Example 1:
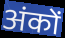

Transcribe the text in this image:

अंकों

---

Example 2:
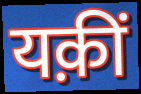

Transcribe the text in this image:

यक़ीं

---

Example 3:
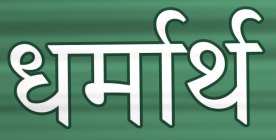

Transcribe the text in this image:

धर्मार्थ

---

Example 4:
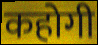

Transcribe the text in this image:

कहोगी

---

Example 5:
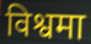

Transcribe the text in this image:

विश्वमा